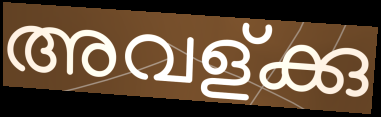
അവള്ക്കു